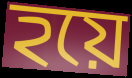
হয়ে